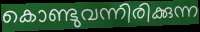
കൊണ്ടുവന്നിരിക്കുന്ന